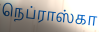
நெப்ராஸ்கா